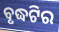
ବୃଦ୍ଧଟିର